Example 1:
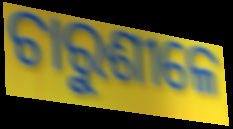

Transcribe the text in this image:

ଚାରୁଶୀଳେ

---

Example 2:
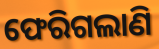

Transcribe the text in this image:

ଫେରିଗଲାଣି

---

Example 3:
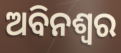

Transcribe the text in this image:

ଅବିନଶ୍ଵର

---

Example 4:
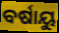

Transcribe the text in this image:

ବର୍ଷାୟୁ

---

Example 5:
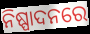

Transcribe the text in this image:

ନିଷ୍ପାଦନରେ